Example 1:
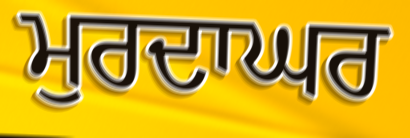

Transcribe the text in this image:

ਮੁਰਦਾਘਰ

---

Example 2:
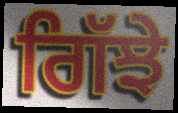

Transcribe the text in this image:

ਗਿੱਝੇ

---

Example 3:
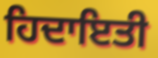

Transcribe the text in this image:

ਹਿਦਾਇਤੀ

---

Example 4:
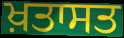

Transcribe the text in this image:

ਖ਼ਤਾਸਤ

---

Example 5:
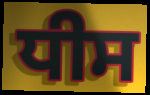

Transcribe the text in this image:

ਧੀਸ